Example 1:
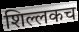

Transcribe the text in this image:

शिल्लकच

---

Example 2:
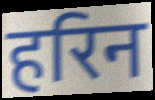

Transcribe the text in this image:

हरिन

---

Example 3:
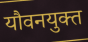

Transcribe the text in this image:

यौवनयुक्त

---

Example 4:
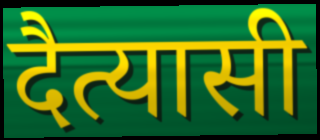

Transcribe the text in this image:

दैत्यासी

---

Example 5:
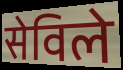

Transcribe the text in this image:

सेविले